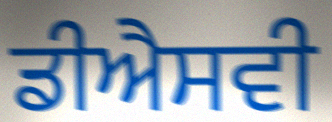
ਡੀਐਸਵੀ